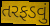
તરફડવું